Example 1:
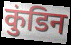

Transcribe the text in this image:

कुंडिन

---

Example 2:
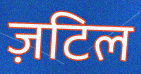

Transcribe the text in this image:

ज़टिल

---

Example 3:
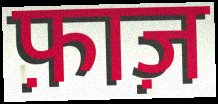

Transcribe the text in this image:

फ़ाज़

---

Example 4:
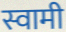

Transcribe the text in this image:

स्‍वामी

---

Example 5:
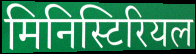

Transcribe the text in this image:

मिनिस्टिरियल